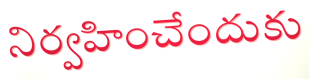
నిర్వహించేందుకు